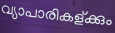
വ്യാപാരികള്ക്കും